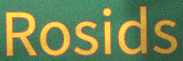
Rosids